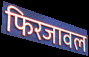
फिरजावल